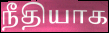
நீதியாக